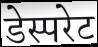
डेस्परेट